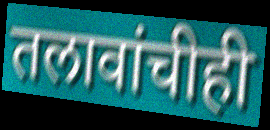
तलावांचीही